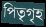
পিতৃগৃহ